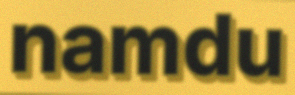
namdu